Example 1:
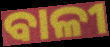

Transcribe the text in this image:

ବାଳୀ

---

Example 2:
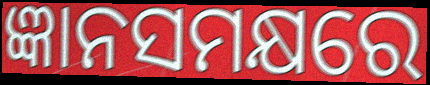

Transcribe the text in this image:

ଜ୍ଞାନସମକ୍ଷରେ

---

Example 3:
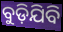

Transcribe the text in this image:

ବୁଡ଼ିଯିବି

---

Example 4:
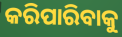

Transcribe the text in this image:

କରିପାରିବାକୁ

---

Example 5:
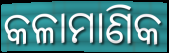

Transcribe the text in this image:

କଳାମାଣିକ